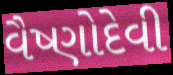
વૈષ્ણોદેવી